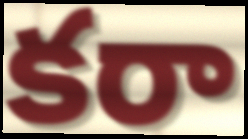
కరా